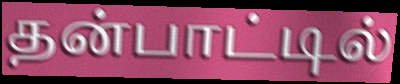
தன்பாட்டில்